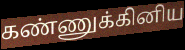
கண்ணுக்கினிய